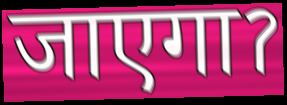
जाएगाॽ